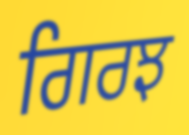
ਗਿਰਝ